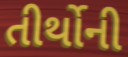
તીર્થોની